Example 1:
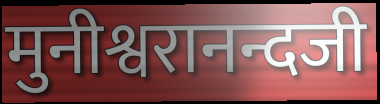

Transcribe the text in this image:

मुनीश्वरानन्दजी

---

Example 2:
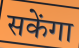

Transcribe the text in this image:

सकेंगा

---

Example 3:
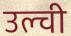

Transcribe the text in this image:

उल्ची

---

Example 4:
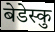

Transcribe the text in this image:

बेडेस्कु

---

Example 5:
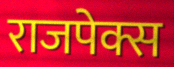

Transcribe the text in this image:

राजपेक्स